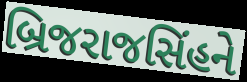
બ્રિજરાજસિંહને